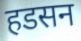
हडसन